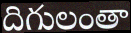
దిగులంతా